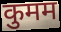
कुमम